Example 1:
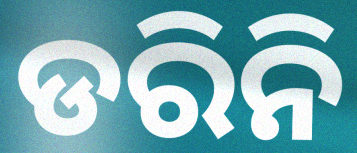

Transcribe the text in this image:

ଡରିନି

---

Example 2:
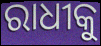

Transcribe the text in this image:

ରାଧୀକୁ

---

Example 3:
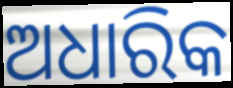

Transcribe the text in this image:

ଅଧାରିକ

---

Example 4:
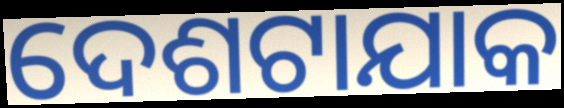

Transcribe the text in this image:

ଦେଶଟାଯାକ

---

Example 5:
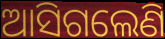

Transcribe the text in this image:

ଆସିଗଲେଣି